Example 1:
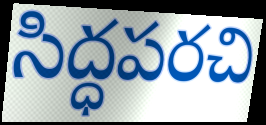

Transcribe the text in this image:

సిద్ధపరచి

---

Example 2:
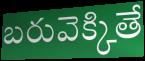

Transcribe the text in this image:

బరువెక్కితే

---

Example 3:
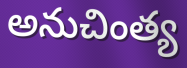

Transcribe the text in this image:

అనుచింత్య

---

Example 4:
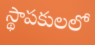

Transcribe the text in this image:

స్థాపకులలో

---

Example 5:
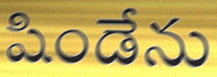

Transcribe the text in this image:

షిండేను